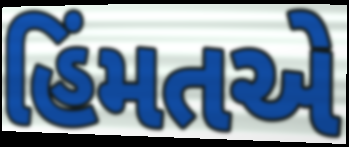
હિંમતએ